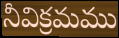
నీవిక్రమము